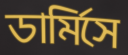
ডার্মিসে